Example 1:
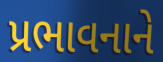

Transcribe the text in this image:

પ્રભાવનાને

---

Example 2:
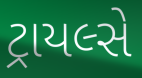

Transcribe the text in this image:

ટ્રાયલ્સે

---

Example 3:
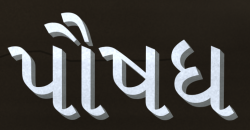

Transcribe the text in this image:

પૌષધ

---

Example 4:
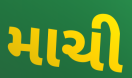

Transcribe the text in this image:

માચી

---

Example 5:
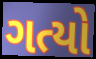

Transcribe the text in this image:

ગત્યો